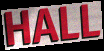
HALL